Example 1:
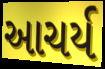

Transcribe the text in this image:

આચર્ય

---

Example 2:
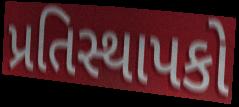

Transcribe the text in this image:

પ્રતિસ્થાપકો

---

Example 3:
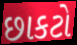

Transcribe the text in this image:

છાકટો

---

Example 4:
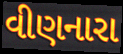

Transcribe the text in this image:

વીણનારા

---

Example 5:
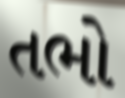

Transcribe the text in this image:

તભો